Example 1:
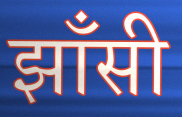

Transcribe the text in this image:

झाँसी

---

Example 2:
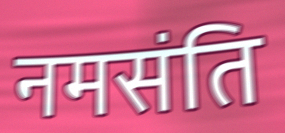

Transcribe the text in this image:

नमसंति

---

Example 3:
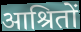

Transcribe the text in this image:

आश्रितों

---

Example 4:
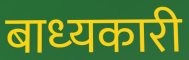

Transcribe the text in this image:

बाध्‍यकारी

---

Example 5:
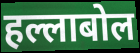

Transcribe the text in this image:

हल्लाबोल